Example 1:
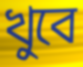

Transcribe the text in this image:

খুবে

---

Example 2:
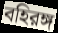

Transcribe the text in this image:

বহিরঙ্গ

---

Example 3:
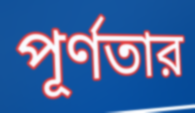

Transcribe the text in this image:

পূর্ণতার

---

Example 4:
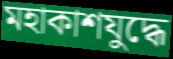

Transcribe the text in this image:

মহাকাশযুদ্ধে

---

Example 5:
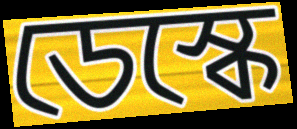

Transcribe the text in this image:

ডেস্কে